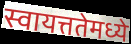
स्वायत्ततेमध्ये